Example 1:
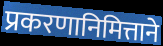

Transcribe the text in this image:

प्रकरणानिमित्ताने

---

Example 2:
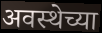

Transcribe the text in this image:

अवस्थेच्या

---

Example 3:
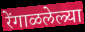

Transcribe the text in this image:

रेंगाळलेल्या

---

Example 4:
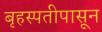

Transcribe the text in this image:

बृहस्पतीपासून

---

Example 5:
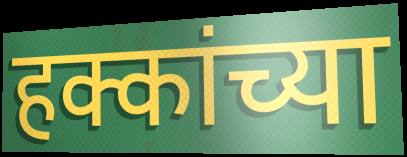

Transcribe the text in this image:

हक्कांच्या